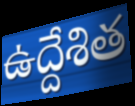
ఉద్దేశిత